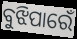
ବୁଝିପାରେଁ